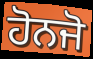
ਹੋਨਜੋ